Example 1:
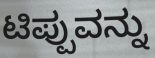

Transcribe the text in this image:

ಟಿಪ್ಪುವನ್ನು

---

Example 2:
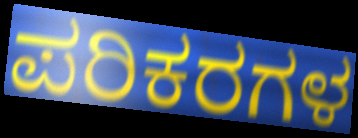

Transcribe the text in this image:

ಪರಿಕರಗಳ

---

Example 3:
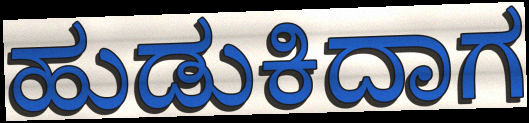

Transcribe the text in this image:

ಹುಡುಕಿದಾಗ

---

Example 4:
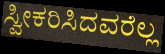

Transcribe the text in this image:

ಸ್ವೀಕರಿಸಿದವರೆಲ್ಲ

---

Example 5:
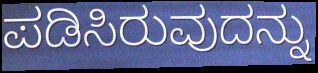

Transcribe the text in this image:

ಪಡಿಸಿರುವುದನ್ನು